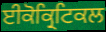
ਈਕੋਕ੍ਰਿਟਿਕਲ